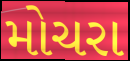
મોચરા